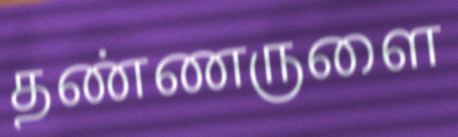
தண்ணருளை